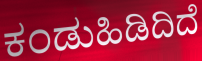
ಕಂಡುಹಿಡಿದಿದೆ